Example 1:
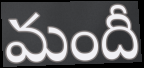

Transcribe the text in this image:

మందీ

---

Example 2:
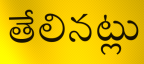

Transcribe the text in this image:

తేలినట్లు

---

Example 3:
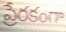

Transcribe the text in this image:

ప్రేరకంగా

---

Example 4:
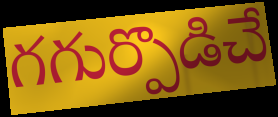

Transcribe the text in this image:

గగుర్పొడిచే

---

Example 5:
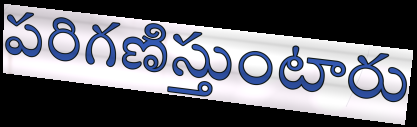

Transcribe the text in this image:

పరిగణిస్తుంటారు